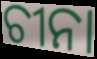
ଚୀନା